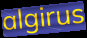
algirus